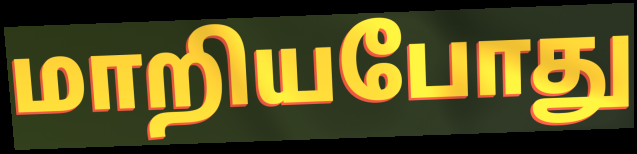
மாறியபோது